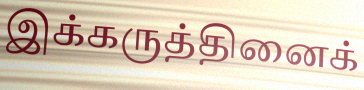
இக்கருத்தினைக்